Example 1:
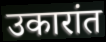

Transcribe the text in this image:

उकारांत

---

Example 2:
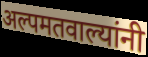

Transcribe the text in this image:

अल्पमतवाल्यांनी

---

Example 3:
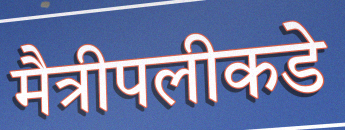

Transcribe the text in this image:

मैत्रीपलीकडे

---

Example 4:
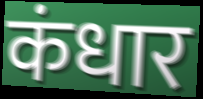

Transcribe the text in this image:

कंधार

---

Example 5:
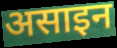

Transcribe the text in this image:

असाइन